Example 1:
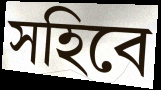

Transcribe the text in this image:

সহিবে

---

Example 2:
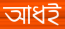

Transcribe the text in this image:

আধই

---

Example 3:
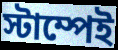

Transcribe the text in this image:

স্টাম্পেই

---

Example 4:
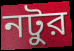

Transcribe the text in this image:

নটুর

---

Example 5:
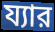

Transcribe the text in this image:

য্যার